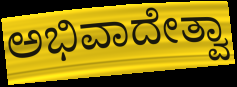
ಅಭಿವಾದೇತ್ವಾ